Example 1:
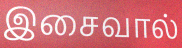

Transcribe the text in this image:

இசைவால்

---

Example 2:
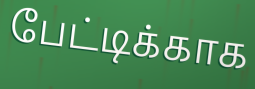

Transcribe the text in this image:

பேட்டிக்காக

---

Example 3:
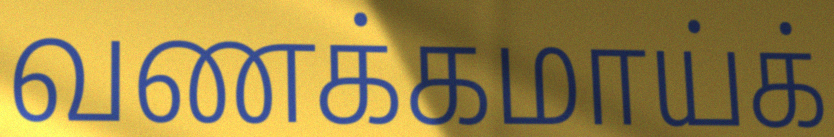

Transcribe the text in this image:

வணக்கமாய்க்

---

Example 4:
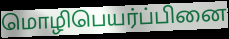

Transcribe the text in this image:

மொழிபெயர்ப்பினை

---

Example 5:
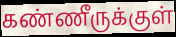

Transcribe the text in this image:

கண்ணீருக்குள்